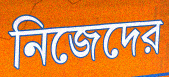
নিজেদের